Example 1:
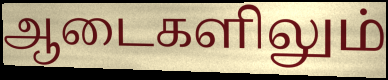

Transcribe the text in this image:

ஆடைகளிலும்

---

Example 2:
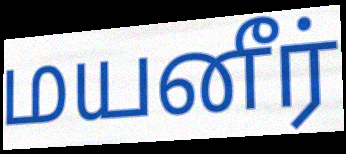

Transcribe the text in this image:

மயனீர்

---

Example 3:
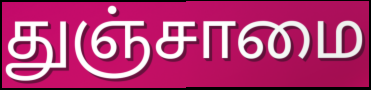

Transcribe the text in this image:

துஞ்சாமை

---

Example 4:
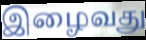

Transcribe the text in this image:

இழைவது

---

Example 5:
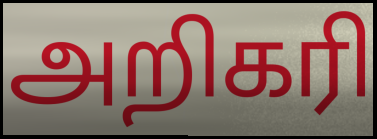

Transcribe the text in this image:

அறிகரி